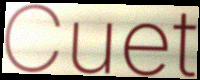
Cuet